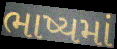
ભાષ્યમાં